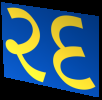
રદ